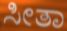
ಸೀತಾ